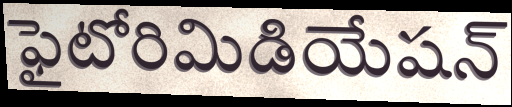
ఫైటోరిమిడియేషన్